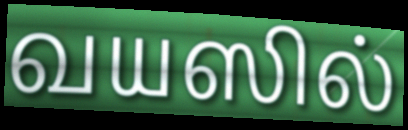
வயஸில்